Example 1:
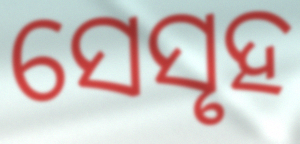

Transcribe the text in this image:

ସେସୃହ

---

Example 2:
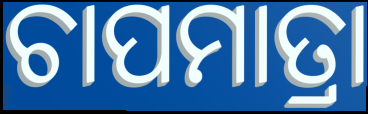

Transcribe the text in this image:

ଚାପମାତ୍ରା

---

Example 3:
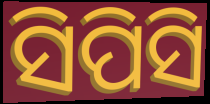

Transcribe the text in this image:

ସିପିସି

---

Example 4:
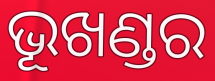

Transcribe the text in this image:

ଭୂଖଣ୍ଡର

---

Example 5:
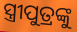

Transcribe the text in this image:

ସ୍ତ୍ରୀପୁତ୍ରଙ୍କୁ